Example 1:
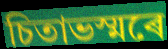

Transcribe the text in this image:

চিতাভস্মৰে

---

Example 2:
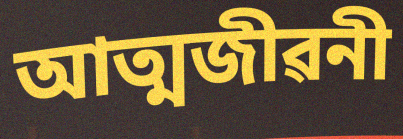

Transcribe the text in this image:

আত্মজীৱনী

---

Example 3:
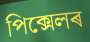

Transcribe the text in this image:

পিক্সেলৰ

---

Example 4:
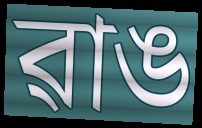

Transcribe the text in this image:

ৱাঙ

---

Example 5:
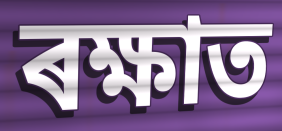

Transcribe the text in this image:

ৰক্ষাত